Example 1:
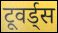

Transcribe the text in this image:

टूवर्ड्स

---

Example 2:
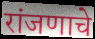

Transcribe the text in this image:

रांजणाचे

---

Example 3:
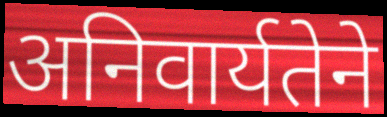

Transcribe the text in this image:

अनिवार्यतेने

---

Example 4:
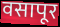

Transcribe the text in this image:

वसापूर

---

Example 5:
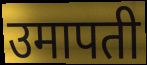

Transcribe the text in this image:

उमापती